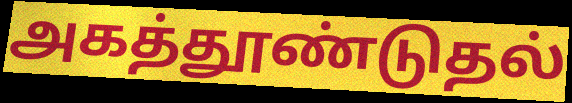
அகத்தூண்டுதல்